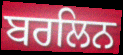
ਬਰਲਿਨ